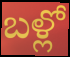
బళ్లో